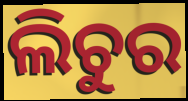
ଲିଚୁର